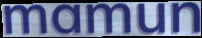
mamun